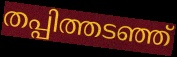
തപ്പിത്തടഞ്ഞ്